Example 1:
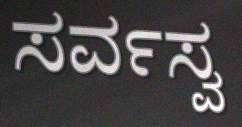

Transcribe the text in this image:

ಸರ್ವಸ್ವ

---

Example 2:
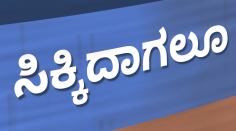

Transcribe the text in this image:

ಸಿಕ್ಕಿದಾಗಲೂ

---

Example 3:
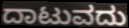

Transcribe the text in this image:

ದಾಟುವದು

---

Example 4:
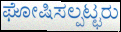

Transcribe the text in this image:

ಘೋಷಿಸಲ್ಪಟ್ಟರು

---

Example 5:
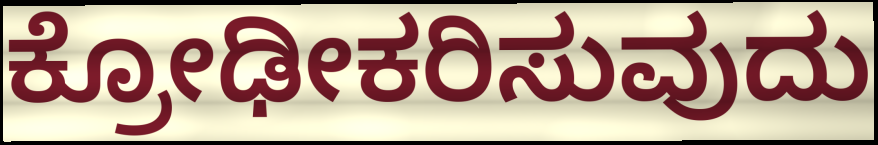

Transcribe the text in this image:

ಕ್ರೋಢೀಕರಿಸುವುದು